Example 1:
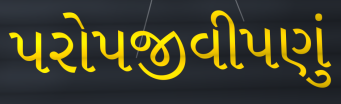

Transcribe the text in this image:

પરોપજીવીપણું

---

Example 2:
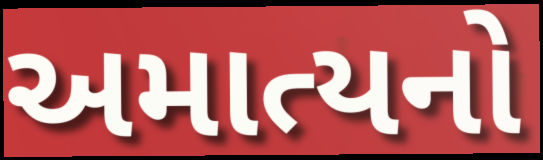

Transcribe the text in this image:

અમાત્યનો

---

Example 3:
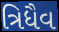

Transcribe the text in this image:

ત્રિધૈવ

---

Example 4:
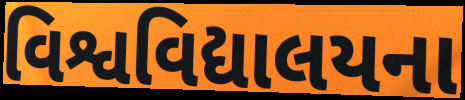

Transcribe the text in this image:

વિશ્વવિદ્યાલયના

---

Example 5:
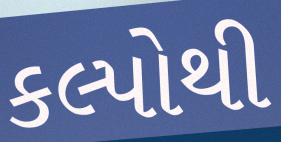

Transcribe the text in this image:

કલ્પોથી